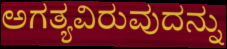
ಅಗತ್ಯವಿರುವುದನ್ನು